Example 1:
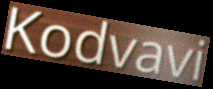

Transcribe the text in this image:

Kodvavi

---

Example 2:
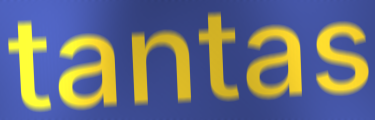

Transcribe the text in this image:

tantas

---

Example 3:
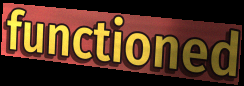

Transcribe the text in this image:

functioned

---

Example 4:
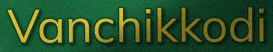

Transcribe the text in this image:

Vanchikkodi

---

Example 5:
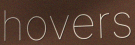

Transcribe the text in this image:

hovers